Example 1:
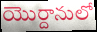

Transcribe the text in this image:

యొర్దానులో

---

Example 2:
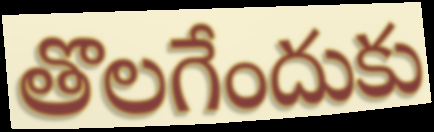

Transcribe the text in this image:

తొలగేందుకు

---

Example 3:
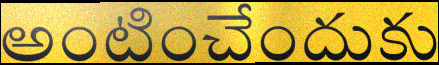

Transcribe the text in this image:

అంటించేందుకు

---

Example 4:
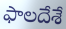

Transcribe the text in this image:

ఫాలదేశే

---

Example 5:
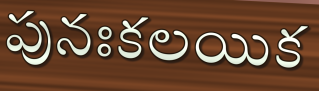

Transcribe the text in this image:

పునఃకలయిక